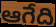
ఆగేది